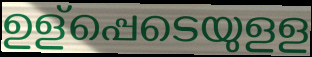
ഉള്പ്പെടെയുളള